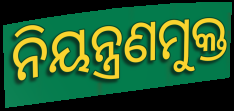
ନିୟନ୍ତ୍ରଣମୁକ୍ତ